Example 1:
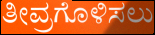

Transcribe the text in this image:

ತೀವ್ರಗೊಳಿಸಲು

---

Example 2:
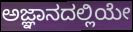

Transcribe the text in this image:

ಅಜ್ಞಾನದಲ್ಲಿಯೇ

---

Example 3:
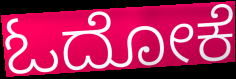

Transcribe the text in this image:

ಓದೋಕೆ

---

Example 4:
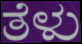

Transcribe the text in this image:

ತೆಳು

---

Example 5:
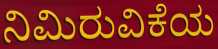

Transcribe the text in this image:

ನಿಮಿರುವಿಕೆಯ